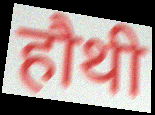
हौथी